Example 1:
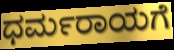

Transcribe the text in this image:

ಧರ್ಮರಾಯಗೆ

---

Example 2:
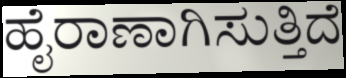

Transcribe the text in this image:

ಹೈರಾಣಾಗಿಸುತ್ತಿದೆ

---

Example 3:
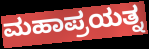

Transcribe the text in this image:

ಮಹಾಪ್ರಯತ್ನ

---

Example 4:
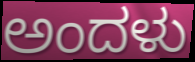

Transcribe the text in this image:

ಅಂದಳು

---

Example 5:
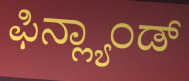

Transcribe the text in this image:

ಫಿನ್ಲ್ಯಾಂಡ್